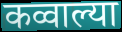
कव्वाल्या